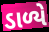
ડાળ્યે